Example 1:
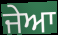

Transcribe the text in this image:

ਜੇਆ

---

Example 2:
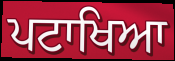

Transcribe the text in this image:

ਪਟਾਖਿਆ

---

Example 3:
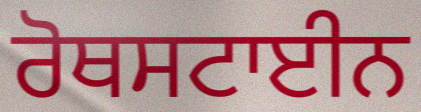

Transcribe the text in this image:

ਰੋਥਸਟਾਈਨ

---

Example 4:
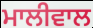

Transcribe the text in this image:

ਮਾਲੀਵਾਲ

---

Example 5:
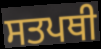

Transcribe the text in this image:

ਸਤਪਥੀ